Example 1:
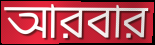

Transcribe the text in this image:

আরবার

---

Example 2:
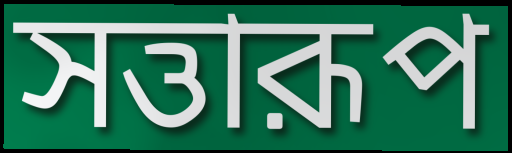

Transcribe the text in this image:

সত্তারূপ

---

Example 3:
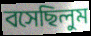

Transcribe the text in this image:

বসেছিলুম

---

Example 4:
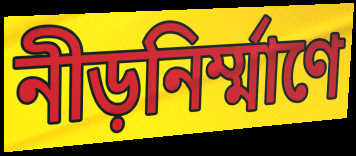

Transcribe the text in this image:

নীড়নির্ম্মাণে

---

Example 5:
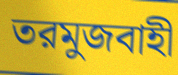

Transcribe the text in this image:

তরমুজবাহী